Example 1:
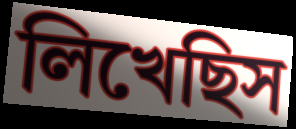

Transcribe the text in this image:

লিখেছিস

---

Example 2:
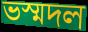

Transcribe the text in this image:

ভস্মদল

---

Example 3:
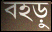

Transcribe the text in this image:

বহড়ু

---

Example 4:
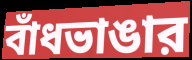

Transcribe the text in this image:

বাঁধভাঙার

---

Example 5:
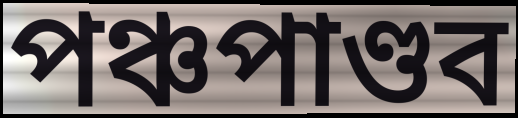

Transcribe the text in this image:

পঞ্চপাণ্ডব